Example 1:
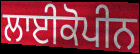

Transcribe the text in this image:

ਲਾਈਕੋਪੀਨ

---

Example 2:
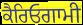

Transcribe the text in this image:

ਕੈਰਿਓਗਾਮੀ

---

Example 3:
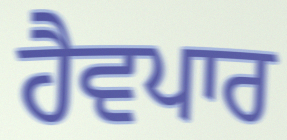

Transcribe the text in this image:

ਹੈਵਪਾਰ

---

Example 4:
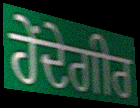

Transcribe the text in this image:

ਹੇਂਦੇਗੀਰ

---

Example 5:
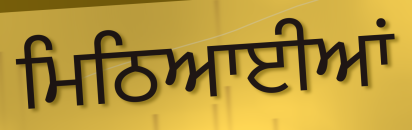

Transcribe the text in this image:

ਮਿਠਿਆਈਆਂ